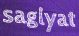
saglyat